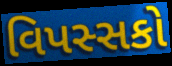
વિપસ્સકો